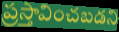
ప్రస్తావించబడని